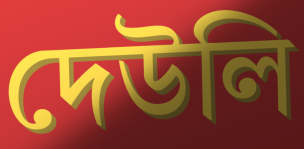
দেউলি